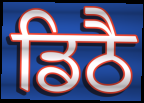
ਡਿਠੈ